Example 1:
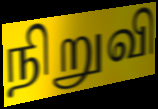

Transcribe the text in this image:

நிறுவி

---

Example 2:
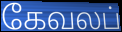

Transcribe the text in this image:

கேவலப்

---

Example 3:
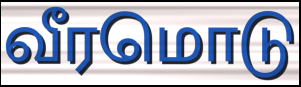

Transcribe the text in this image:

வீரமொடு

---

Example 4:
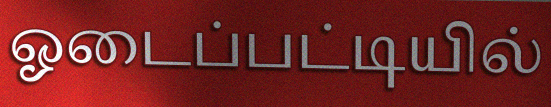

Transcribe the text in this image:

ஓடைப்பட்டியில்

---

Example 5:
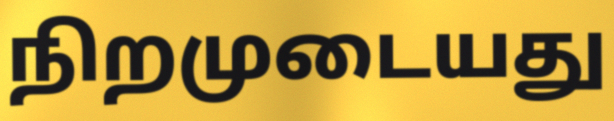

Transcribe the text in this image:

நிறமுடையது